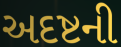
અદષ્ટની